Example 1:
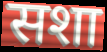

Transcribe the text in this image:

सशा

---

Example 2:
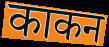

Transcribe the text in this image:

काकन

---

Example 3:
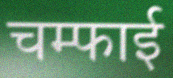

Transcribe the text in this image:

चम्फाई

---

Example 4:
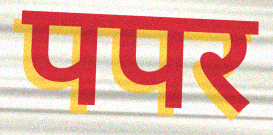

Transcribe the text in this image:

पपर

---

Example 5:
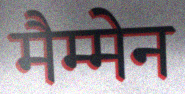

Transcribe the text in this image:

मैम्मेन